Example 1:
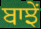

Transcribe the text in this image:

ਬਾਝੇਂ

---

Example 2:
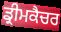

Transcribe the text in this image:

ਡ੍ਰੀਮਕੈਚਰ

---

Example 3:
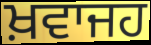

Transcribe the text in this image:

ਖ਼ਵਾਜਹ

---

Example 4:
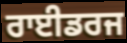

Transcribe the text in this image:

ਰਾਈਡਰਜ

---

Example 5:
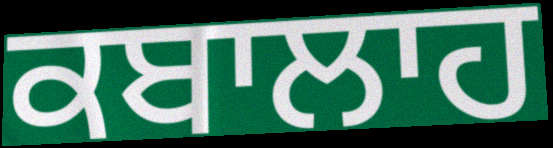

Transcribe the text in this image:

ਕਬਾਲਾਹ